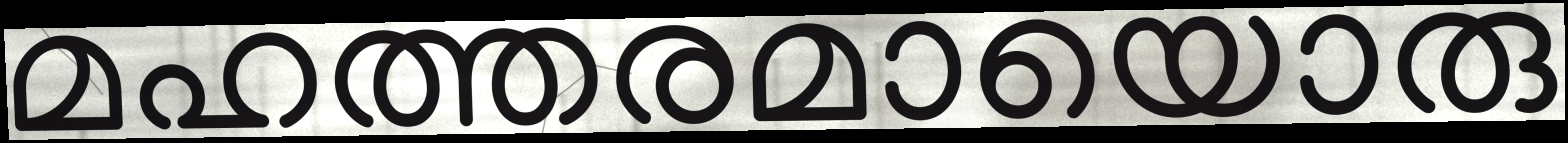
മഹത്തരമായൊരു